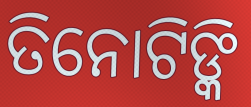
ତିନୋଟିଙ୍କି